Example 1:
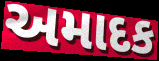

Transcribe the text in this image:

અમાદક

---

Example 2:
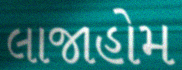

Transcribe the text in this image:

લાજાહોમ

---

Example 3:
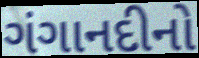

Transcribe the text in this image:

ગંગાનદીનો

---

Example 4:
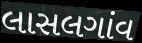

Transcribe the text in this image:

લાસલગાંવ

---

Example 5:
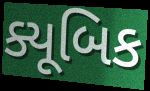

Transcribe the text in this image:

ક્યૂબિક